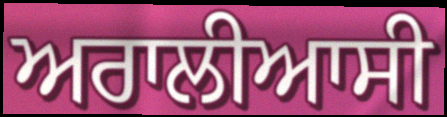
ਅਰਾਲੀਆਸੀ